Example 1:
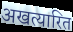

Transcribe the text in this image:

अखत्यारित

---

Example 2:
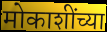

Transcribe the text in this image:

मोकाशींच्या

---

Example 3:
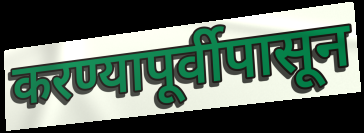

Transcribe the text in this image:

करण्यापूर्वीपासून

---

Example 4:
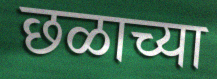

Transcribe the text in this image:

छळाच्या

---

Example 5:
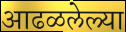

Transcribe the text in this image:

आढळलेल्या